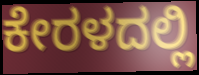
ಕೇರಳದಲ್ಲಿ